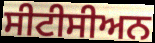
ਸੀਟੀਸੀਅਨ